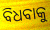
ବିଧବାକୁ